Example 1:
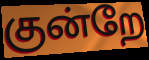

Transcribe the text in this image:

குன்றே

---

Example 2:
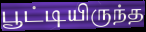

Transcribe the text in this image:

பூட்டியிருந்த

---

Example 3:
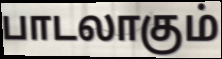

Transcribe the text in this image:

பாடலாகும்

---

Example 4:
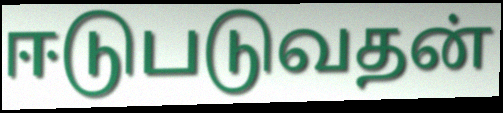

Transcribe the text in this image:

ஈடுபடுவதன்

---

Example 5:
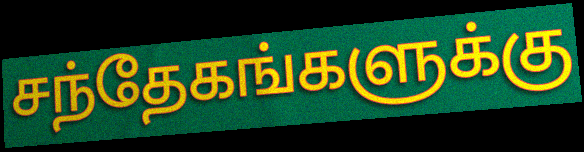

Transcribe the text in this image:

சந்தேகங்களுக்கு